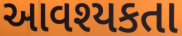
આવશ્યકતા